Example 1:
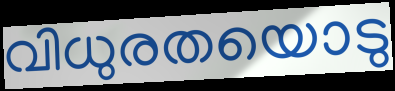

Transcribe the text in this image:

വിധുരതയൊടു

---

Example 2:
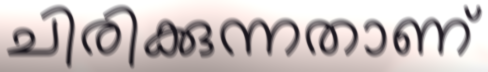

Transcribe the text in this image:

ചിരിക്കുന്നതാണ്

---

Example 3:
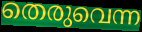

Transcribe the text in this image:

തെരുവെന്ന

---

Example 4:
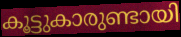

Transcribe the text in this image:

കൂട്ടുകാരുണ്ടായി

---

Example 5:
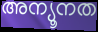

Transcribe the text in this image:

അന്യൂനത